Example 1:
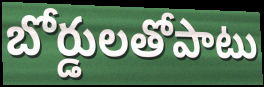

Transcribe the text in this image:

బోర్డులతోపాటు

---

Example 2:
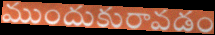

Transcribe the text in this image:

ముందుకురావడం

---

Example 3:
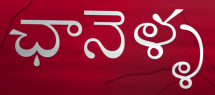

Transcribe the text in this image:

ఛానెళ్ళ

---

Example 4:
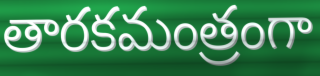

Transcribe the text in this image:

తారకమంత్రంగా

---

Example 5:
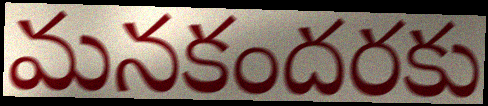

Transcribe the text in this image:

మనకందరకు